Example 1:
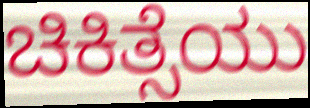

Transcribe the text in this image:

ಚಿಕಿತ್ಸೆಯು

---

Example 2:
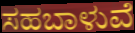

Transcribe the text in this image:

ಸಹಬಾಳುವೆ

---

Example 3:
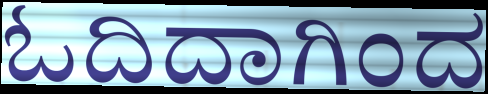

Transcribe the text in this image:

ಓದಿದಾಗಿಂದ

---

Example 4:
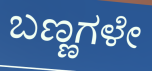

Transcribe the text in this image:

ಬಣ್ಣಗಳೇ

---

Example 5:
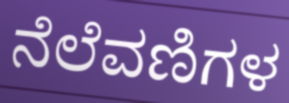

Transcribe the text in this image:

ನೆಲೆವಣಿಗಳ